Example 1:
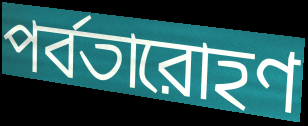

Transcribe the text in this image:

পর্বতারোহণ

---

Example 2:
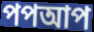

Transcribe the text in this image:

পপআপ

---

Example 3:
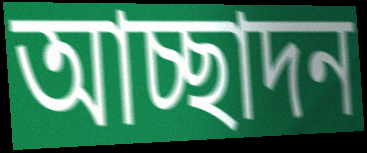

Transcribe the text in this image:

আচ্ছাদন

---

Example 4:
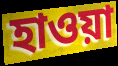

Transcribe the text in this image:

হাওয়া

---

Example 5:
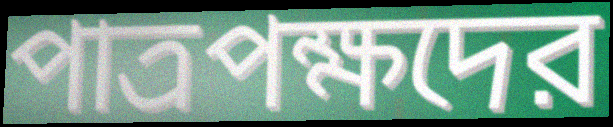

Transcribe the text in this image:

পাত্রপক্ষদের